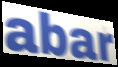
abar